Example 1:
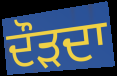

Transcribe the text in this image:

ਦੌੜਦਾ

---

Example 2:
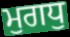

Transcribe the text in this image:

ਮੁਗਧੁ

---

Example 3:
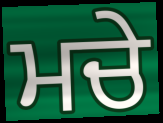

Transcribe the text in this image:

ਮਚੇ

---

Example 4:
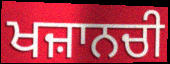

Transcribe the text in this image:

ਖਜ਼ਾਨਚੀ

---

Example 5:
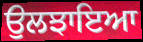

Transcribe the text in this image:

ਉਲਝਾਇਆ